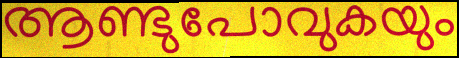
ആണ്ടുപോവുകയും